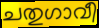
ചതുഗാവീ